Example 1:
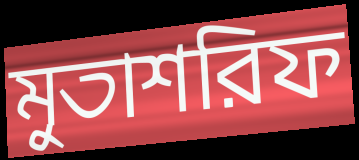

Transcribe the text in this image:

মুতাশরিফ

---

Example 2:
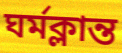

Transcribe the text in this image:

ঘর্মক্লান্ত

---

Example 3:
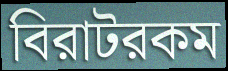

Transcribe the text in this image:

বিরাটরকম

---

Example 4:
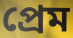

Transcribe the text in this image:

প্রেম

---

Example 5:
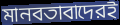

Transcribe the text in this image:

মানবতাবাদেরই